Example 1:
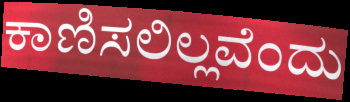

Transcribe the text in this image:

ಕಾಣಿಸಲಿಲ್ಲವೆಂದು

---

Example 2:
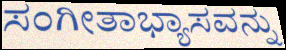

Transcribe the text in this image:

ಸಂಗೀತಾಭ್ಯಾಸವನ್ನು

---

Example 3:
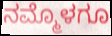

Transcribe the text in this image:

ನಮ್ಮೊಳಗೂ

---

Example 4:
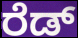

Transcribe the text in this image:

ರೆಡ್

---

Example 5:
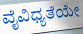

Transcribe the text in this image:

ವೈವಿಧ್ಯತೆಯೇ